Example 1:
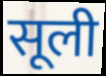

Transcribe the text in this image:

सूली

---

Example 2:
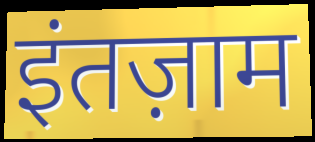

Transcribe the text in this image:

इंतज़ाम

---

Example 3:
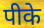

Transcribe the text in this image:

पीके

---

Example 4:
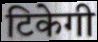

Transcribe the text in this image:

टिकेगी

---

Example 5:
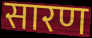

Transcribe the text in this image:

सारण